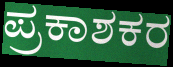
ಪ್ರಕಾಶಕರ